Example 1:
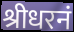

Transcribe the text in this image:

श्रीधरनं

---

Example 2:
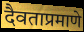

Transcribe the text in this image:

दैवताप्रमाणे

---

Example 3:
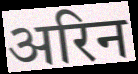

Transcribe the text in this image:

अरिन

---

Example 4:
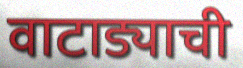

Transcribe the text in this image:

वाटाड्याची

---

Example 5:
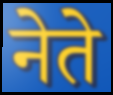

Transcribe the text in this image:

नेते